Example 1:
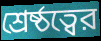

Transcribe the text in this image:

শ্রেষ্ঠত্বের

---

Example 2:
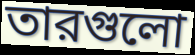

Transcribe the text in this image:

তারগুলো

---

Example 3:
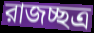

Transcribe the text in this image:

রাজচ্ছত্র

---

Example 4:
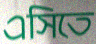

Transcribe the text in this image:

এসিতে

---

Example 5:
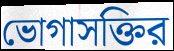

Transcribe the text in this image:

ভোগাসক্তির